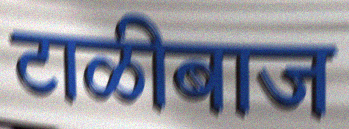
टाळीबाज